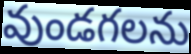
వుండగలను